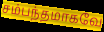
சம்பந்தமாகவே